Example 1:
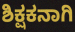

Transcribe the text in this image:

ಶಿಕ್ಷಕನಾಗಿ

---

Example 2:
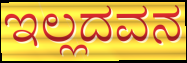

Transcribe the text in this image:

ಇಲ್ಲದವನ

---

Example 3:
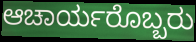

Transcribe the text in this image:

ಆಚಾರ್ಯರೊಬ್ಬರು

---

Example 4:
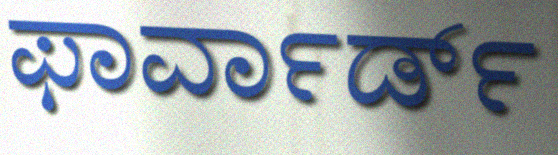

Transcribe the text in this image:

ಫಾರ್ವಾರ್ಡ್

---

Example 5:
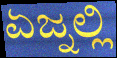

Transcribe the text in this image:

ಏಜ್ನಲ್ಲಿ